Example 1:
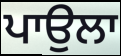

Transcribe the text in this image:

ਪਾਉਲਾ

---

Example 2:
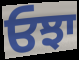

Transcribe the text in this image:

ਓਝਾ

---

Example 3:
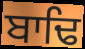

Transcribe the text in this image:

ਬਾਢਿ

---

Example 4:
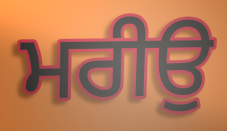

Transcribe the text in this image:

ਮਰੀਉ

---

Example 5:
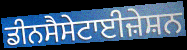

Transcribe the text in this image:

ਡੀਨਸੈਸੇਟਾਈਜ਼ੇਸ਼ਨ